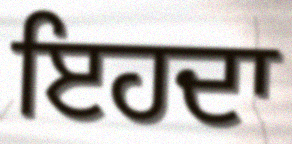
ਇਹਦਾ